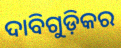
ଦାବିଗୁଡ଼ିକର